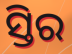
ସ୍ତିର